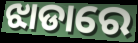
ଝାଡାରେ